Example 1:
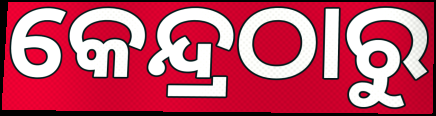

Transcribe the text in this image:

କେନ୍ଦ୍ରଠାରୁ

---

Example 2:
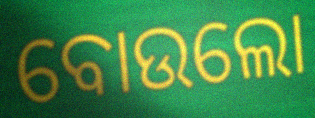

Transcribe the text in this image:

ବୋଉଲୋ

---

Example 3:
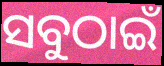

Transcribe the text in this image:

ସବୁଠାଇଁ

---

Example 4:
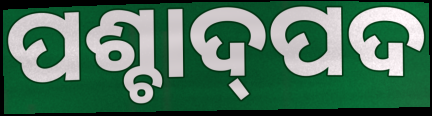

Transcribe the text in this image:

ପଶ୍ଚାଦ୍‍ପଦ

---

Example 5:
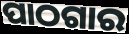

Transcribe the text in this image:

ପାଠଗାର